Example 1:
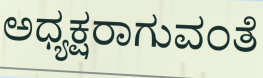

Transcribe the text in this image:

ಅಧ್ಯಕ್ಷರಾಗುವಂತೆ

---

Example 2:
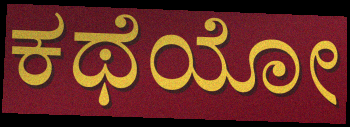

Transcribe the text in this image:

ಕಥೆಯೋ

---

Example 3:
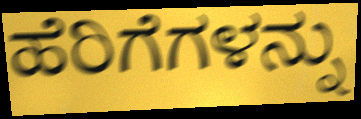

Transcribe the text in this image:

ಹೆರಿಗೆಗಳನ್ನು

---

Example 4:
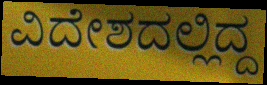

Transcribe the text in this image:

ವಿದೇಶದಲ್ಲಿದ್ದ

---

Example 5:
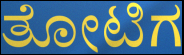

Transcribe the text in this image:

ತೋಟಿಗ